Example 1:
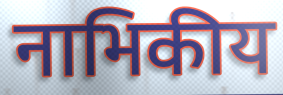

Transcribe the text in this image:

नाभिकीय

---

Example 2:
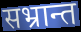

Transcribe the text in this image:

सभ्रान्त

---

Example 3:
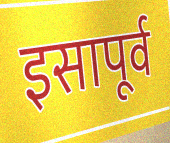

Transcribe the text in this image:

इसापूर्व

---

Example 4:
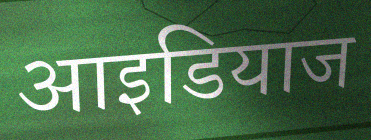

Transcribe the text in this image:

आइडियाज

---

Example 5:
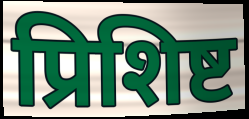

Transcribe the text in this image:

प्रिशिष्ट